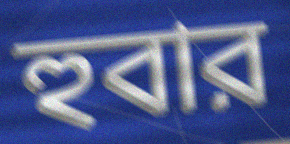
হুবার